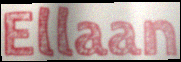
Ellaan